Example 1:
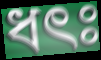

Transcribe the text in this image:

ধৎঃ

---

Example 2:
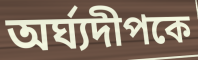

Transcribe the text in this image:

অর্ঘ্যদীপকে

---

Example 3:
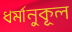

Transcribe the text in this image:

ধর্মানুকূল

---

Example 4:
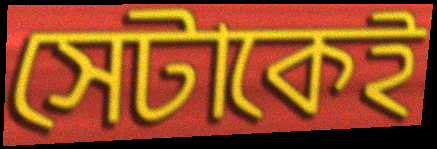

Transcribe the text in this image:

সেটাকেই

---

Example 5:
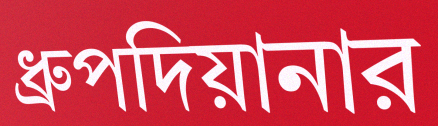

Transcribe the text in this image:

ধ্রুপদিয়ানার